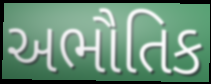
અભૌતિક